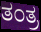
ತಂತ್ರ